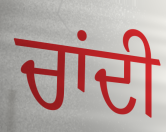
ਚਾਂਦੀ